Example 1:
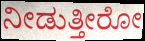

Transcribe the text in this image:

ನೀಡುತ್ತೀರೋ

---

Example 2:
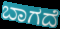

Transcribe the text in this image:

ಬಾಗದೆ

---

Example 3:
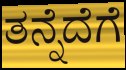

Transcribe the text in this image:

ತನ್ನೆದೆಗೆ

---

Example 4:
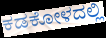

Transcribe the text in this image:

ಕಡಕೋಳದಲ್ಲಿ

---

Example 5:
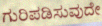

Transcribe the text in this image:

ಗುರಿಪಡಿಸುವುದೇ